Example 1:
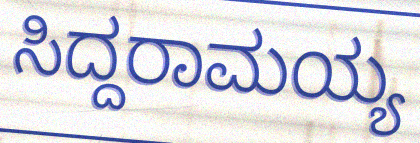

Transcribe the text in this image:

ಸಿದ್ದರಾಮಯ್ಯ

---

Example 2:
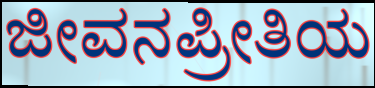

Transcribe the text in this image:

ಜೀವನಪ್ರೀತಿಯ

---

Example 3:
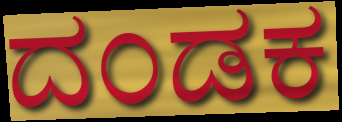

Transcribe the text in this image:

ದಂಡಕ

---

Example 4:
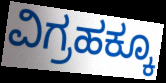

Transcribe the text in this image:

ವಿಗ್ರಹಕ್ಕೂ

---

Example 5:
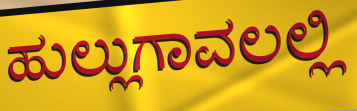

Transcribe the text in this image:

ಹುಲ್ಲುಗಾವಲಲ್ಲಿ